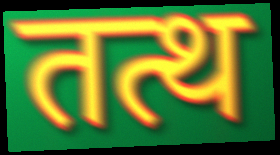
तत्थ